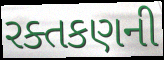
રક્તકણની